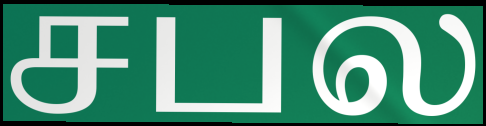
சபல